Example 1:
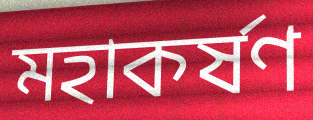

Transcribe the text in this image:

মহাকৰ্ষণ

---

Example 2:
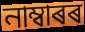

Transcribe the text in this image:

নাম্বাৰৰ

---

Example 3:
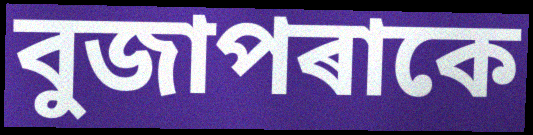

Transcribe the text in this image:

বুজাপৰাকে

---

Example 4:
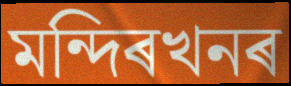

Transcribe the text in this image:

মন্দিৰখনৰ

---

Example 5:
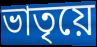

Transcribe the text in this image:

ভাতৃয়ে